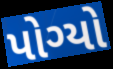
પોગ્યો